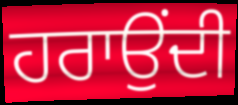
ਹਰਾਉਂਦੀ